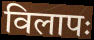
विलापः